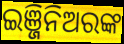
ଇଞ୍ଜିନିଅରଙ୍କ